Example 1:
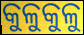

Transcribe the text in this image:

କୁଳୁକୁଳୁ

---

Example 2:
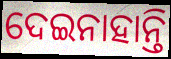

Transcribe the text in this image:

ଦେଇନାହାନ୍ତି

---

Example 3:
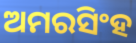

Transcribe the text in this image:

ଅମରସିଂହ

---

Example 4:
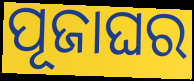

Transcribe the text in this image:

ପୂଜାଘର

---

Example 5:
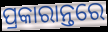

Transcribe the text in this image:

ପ୍ରକାରାନ୍ତରେ